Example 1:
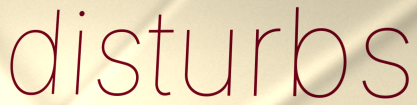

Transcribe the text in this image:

disturbs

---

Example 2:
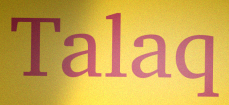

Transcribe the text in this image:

Talaq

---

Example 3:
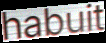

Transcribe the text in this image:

habuit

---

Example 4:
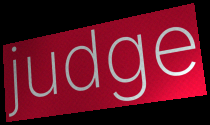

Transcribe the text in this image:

judge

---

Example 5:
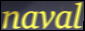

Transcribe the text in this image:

naval